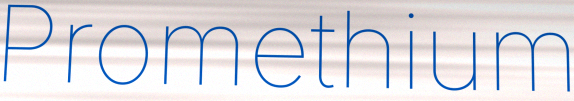
Promethium